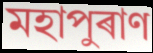
মহাপুৰাণ